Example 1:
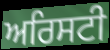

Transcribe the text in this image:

ਅਰਿਸਟੀ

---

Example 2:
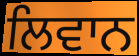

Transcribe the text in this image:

ਲਿਵਾਨ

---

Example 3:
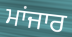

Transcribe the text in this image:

ਮਾਂਜਾਰ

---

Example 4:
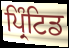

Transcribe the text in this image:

ਪ੍ਰਿੰਟਿਡ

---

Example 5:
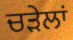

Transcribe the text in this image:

ਚੜੇਲਾਂ